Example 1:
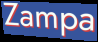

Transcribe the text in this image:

Zampa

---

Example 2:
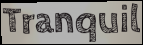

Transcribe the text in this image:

Tranquil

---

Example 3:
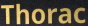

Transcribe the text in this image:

Thorac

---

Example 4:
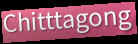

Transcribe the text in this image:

Chitttagong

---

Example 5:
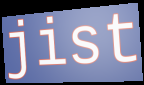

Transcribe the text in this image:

jist